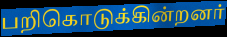
பறிகொடுக்கின்றனர்